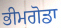
ਭੀਮਗੋਡਾ